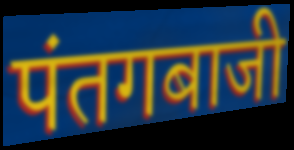
पंतगबाजी